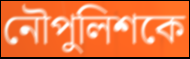
নৌপুলিশকে